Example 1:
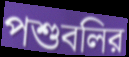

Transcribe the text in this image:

পশুবলির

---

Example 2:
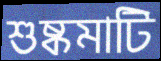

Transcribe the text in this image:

শুষ্কমাটি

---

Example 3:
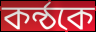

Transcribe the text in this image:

কন্ঠকে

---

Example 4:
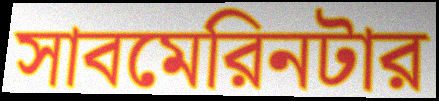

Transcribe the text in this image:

সাবমেরিনটার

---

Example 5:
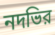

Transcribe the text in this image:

নদভির